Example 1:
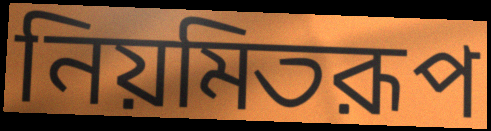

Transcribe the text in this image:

নিয়মিতরূপ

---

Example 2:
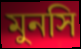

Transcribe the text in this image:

মুনসি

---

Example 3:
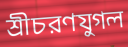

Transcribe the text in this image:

শ্রীচরণযুগল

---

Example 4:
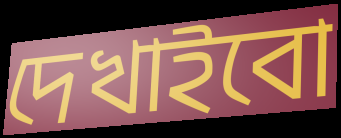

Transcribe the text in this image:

দেখাইবো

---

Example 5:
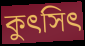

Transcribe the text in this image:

কুৎসিৎ